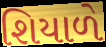
શિયાળે